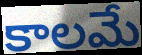
కాలమే